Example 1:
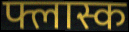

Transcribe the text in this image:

फ्लास्क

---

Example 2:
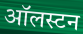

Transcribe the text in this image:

ऑलस्टन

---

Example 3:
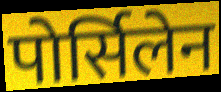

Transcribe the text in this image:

पोर्सिलेन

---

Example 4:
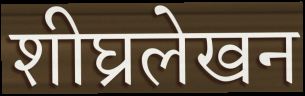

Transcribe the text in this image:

शीघ्रलेखन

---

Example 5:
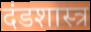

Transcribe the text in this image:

दंडशास्त्र